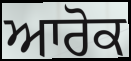
ਆਰੋਕ